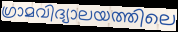
ഗ്രാമവിദ്യാലയത്തിലെ